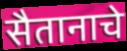
सैतानाचे